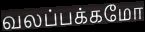
வலப்பக்கமோ